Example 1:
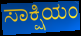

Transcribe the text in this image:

ಸಾಕ್ಷಿಯಂ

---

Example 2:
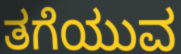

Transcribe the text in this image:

ತಗೆಯುವ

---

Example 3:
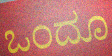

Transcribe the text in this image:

ಒಂದೂ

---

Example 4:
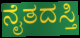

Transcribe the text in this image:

ನೈತದಸ್ತಿ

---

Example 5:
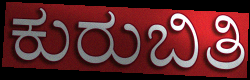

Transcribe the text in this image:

ಕುರುಬಿತಿ